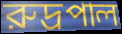
রুদ্রপাল